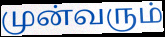
முன்வரும்